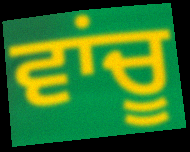
ਵਾਂਚੂ